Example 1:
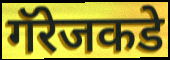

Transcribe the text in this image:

गॅरेजकडे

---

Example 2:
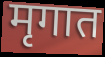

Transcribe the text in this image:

मृगात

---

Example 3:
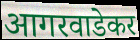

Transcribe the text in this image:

आगरवाडेकर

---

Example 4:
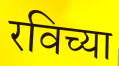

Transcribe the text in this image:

रविच्या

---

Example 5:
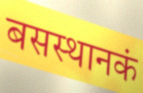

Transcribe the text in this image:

बसस्थानकं